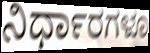
ನಿರ್ಧಾರಗಳೂ